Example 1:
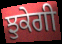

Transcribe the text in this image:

ਝੁਕੇਗੀ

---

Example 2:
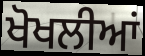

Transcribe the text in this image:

ਖੋਖਲੀਆਂ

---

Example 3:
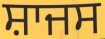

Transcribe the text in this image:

ਸ਼ਾਜਸ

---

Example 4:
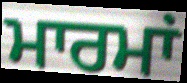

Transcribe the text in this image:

ਮਾਰਮਾਂ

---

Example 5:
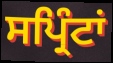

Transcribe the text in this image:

ਸਪ੍ਰਿੰਟਾਂ